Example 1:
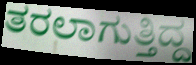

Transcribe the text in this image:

ತರಲಾಗುತ್ತಿದ್ದ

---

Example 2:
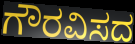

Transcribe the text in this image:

ಗೌರವಿಸದ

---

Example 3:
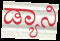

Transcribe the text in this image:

ಡ್ಯಾನಿ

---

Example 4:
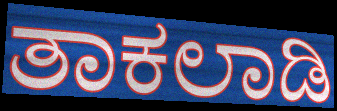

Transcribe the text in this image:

ತಾಕಲಾಡಿ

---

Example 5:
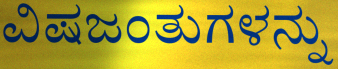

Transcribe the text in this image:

ವಿಷಜಂತುಗಳನ್ನು